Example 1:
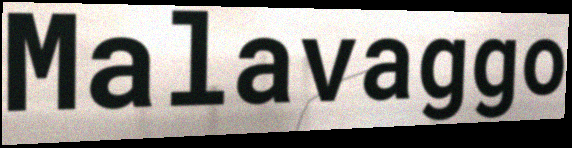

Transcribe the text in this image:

Malavaggo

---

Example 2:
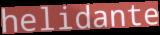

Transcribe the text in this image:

helidante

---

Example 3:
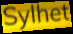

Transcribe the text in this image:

Sylhet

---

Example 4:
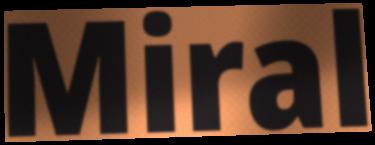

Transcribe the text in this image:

Miral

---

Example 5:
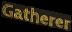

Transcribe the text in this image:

Gatherer